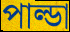
পাল্ডা